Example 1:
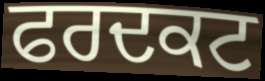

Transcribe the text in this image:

ਫਰਦਕਟ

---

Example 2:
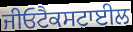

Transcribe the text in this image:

ਜੀਓਟੈਕਸਟਾਈਲ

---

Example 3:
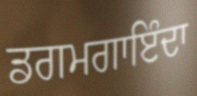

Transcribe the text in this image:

ਡਗਮਗਾਇੰਦਾ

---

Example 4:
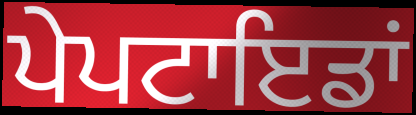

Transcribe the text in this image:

ਪੇਪਟਾਇਡਾਂ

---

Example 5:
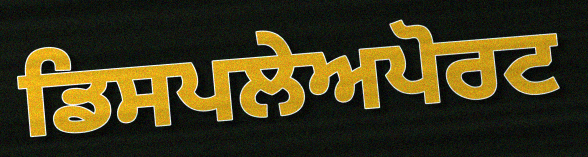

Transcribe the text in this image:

ਡਿਸਪਲੇਅਪੋਰਟ